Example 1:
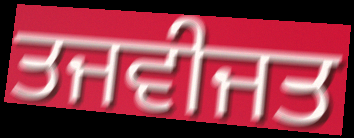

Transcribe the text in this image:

ਤਜਵੀਜਤ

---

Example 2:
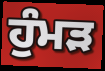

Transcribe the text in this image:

ਹੁੰਮੜ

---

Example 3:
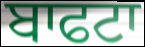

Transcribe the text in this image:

ਬਾਫਟਾ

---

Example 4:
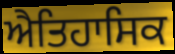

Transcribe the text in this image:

ਐਤਿਹਾਸਿਕ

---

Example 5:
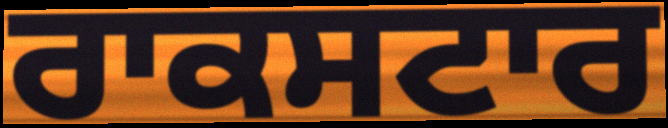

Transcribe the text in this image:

ਰਾਕਸਟਾਰ